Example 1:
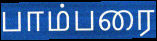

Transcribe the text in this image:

பாம்பரை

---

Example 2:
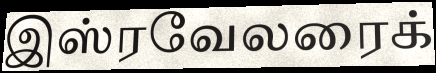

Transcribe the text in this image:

இஸ்ரவேலரைக்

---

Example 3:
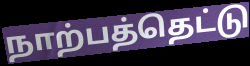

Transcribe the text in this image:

நாற்பத்தெட்டு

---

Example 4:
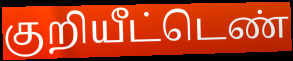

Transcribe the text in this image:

குறியீட்டெண்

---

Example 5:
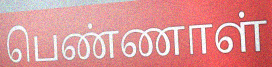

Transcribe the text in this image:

பெண்ணாள்